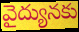
వైద్యునకు